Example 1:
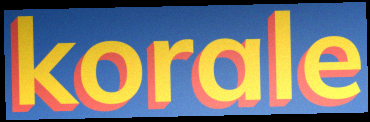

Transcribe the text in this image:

korale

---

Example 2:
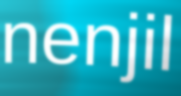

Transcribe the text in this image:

nenjil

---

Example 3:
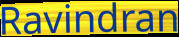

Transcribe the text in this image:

Ravindran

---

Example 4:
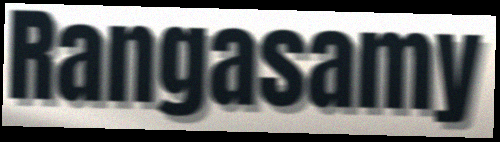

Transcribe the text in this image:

Rangasamy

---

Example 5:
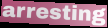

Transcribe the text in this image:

arresting